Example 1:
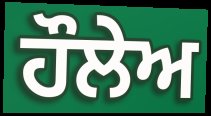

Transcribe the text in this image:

ਹੌਲੇਅ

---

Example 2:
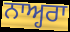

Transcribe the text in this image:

ਨਾਅ੍ਹਰਾ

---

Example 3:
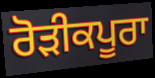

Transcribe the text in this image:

ਰੋੜੀਕਪੂਰਾ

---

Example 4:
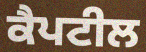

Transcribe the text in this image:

ਕੈਪਟੀਲ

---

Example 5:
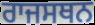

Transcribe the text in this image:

ਰਾਜਸਥਨ